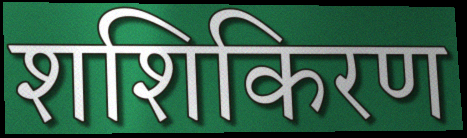
शशिकिरण